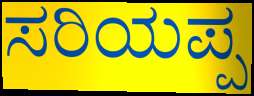
ಸರಿಯಪ್ಪ